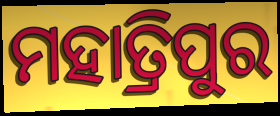
ମହାତ୍ରିପୁର